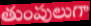
తుంపులుగా